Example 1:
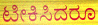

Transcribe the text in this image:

ಟೀಕಿಸಿದರೂ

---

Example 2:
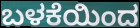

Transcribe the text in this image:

ಬಳಕೆಯಿಂದ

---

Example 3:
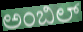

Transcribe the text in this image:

ಅಂಬಿಲ್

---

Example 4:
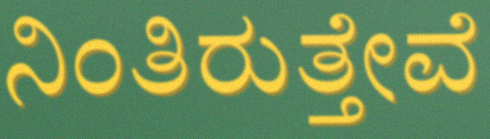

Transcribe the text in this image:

ನಿಂತಿರುತ್ತೇವೆ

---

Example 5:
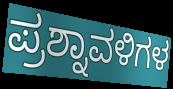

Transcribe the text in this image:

ಪ್ರಶ್ನಾವಳಿಗಳ